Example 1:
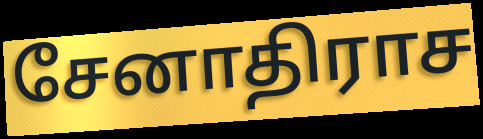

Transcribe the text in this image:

சேனாதிராச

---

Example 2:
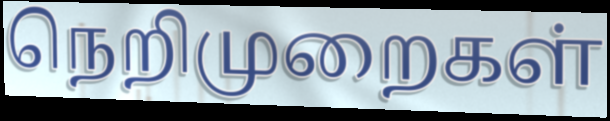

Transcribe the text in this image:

நெறிமுறைகள்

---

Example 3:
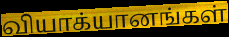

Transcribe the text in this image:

வியாக்யானங்கள்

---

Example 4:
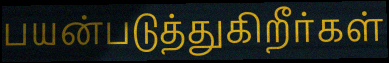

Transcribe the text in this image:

பயன்படுத்துகிறீர்கள்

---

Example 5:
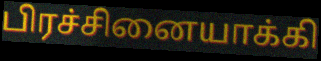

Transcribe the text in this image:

பிரச்சினையாக்கி